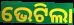
ଭେଟିଲା